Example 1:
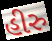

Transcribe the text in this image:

હીરુ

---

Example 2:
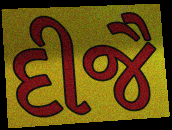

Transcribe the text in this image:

દીજૈ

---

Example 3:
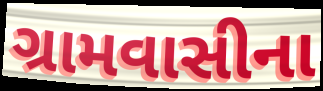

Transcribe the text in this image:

ગ્રામવાસીના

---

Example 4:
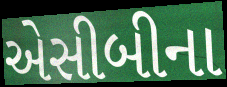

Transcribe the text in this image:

એસીબીના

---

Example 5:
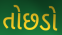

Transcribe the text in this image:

તોછડો